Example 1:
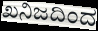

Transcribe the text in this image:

ಖನಿಜದಿಂದ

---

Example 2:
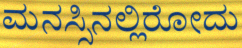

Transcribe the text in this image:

ಮನಸ್ಸಿನಲ್ಲಿರೋದು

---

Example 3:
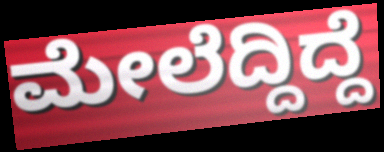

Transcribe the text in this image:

ಮೇಲೆದ್ದಿದ್ದೆ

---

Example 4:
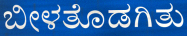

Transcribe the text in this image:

ಬೀಳತೊಡಗಿತು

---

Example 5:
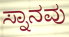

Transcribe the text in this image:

ಸ್ನಾನವು